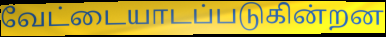
வேட்டையாடப்படுகின்றன